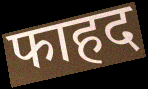
फाहद